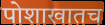
पोशाखातच